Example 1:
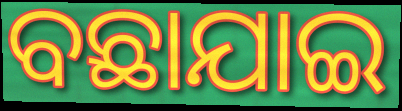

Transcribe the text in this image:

ବଛାଯାଇ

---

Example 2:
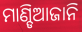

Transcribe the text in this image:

ମାଣ୍ଡିଆଜାନି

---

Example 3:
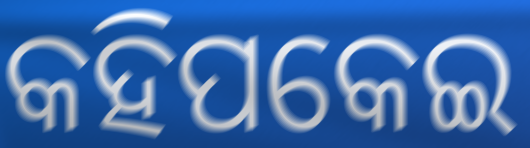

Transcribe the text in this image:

କହିପକେଇ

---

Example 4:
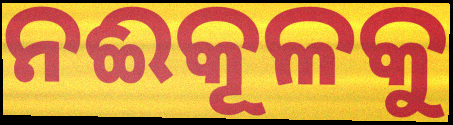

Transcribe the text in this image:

ନଈକୂଳକୁ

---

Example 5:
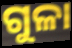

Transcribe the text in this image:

ଗୁଳା